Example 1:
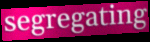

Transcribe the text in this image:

segregating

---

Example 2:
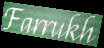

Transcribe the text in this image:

Farrukh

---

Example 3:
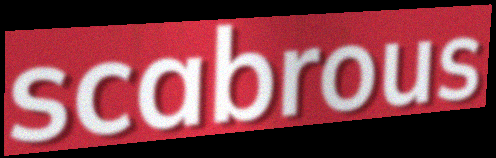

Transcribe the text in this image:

scabrous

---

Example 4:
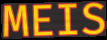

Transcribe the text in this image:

MEIS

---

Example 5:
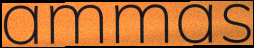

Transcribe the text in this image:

ammas